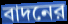
বাদনের